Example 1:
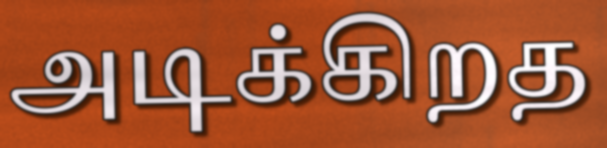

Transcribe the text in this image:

அடிக்கிறத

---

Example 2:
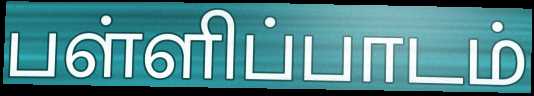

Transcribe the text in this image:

பள்ளிப்பாடம்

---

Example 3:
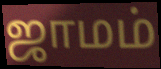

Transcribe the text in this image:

ஜாமம்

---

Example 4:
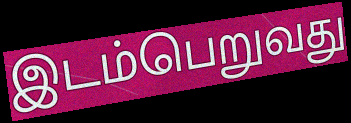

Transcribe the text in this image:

இடம்பெறுவது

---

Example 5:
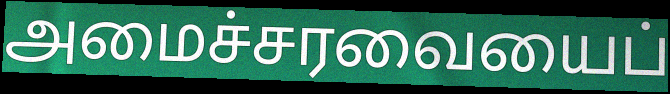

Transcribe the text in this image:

அமைச்சரவையைப்